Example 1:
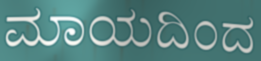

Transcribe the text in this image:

ಮಾಯದಿಂದ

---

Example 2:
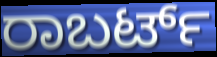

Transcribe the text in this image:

ರಾಬರ್ಟ್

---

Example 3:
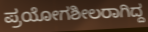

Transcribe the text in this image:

ಪ್ರಯೋಗಶೀಲರಾಗಿದ್ದ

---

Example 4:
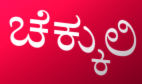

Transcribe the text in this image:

ಚೆಕ್ಕುಲಿ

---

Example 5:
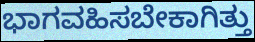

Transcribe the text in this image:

ಭಾಗವಹಿಸಬೇಕಾಗಿತ್ತು